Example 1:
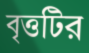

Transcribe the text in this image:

বৃত্তটির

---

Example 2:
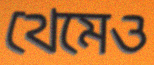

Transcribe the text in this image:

থেমেও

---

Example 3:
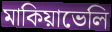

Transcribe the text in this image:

মাকিয়াভেলি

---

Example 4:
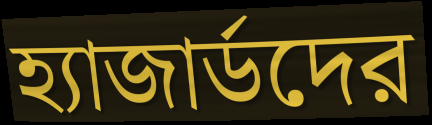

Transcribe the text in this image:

হ্যাজার্ডদের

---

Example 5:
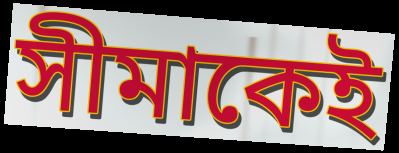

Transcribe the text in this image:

সীমাকেই